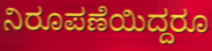
ನಿರೂಪಣೆಯಿದ್ದರೂ